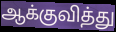
ஆக்குவித்து